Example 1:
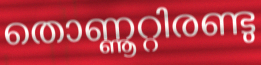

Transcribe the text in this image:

തൊണ്ണൂറ്റിരണ്ടു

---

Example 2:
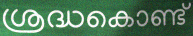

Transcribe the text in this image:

ശ്രദ്ധകൊണ്ട്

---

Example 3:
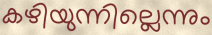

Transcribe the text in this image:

കഴിയുന്നില്ലെന്നും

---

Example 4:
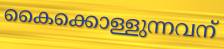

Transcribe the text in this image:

കൈക്കൊള്ളുന്നവന്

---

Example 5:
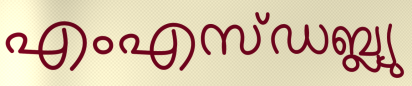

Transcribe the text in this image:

എംഎസ്ഡബ്ല്യു